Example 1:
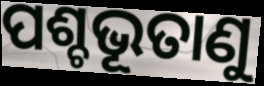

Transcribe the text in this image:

ପଶ୍ଚଭୂତାଣୁ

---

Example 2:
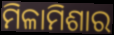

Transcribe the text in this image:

ମିଳାମିଶାର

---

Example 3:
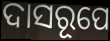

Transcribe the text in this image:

ଦାସରୂପେ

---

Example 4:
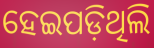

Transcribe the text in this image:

ହେଇପଡ଼ିଥିଲି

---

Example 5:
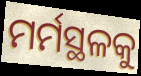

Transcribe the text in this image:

ମର୍ମସ୍ଥଳକୁ